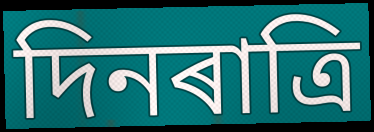
দিনৰাত্ৰি